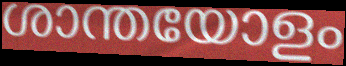
ശാന്തയോളം